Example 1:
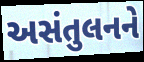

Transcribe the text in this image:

અસંતુલનને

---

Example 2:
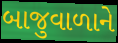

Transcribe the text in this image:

બાજુવાળાને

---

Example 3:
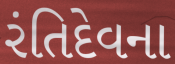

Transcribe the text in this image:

રંતિદેવના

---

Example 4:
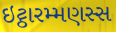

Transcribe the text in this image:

ઇટ્ઠારમ્મણસ્સ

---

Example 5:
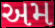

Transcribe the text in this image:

અમ